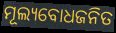
ମୂଲ୍ୟବୋଧଜନିତ